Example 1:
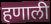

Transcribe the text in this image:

हणाली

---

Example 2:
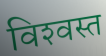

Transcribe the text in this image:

विश्वस्त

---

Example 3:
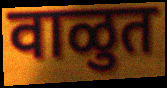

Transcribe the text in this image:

वाळुत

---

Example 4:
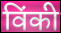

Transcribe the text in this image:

विंकी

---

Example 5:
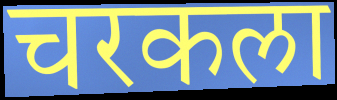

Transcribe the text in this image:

चरकला